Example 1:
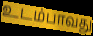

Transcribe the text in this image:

உடம்பாவது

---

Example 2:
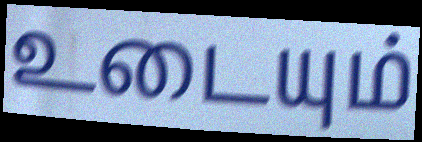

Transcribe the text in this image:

உடையும்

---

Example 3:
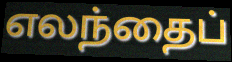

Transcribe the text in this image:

எலந்தைப்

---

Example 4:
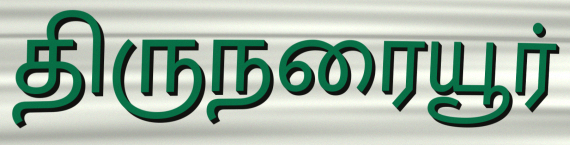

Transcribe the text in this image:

திருநரையூர்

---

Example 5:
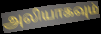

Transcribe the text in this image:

அலியாகவும்